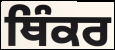
ਥਿੰਕਰ